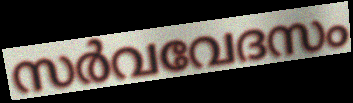
സർവവേദസം